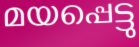
മയപ്പെട്ടു